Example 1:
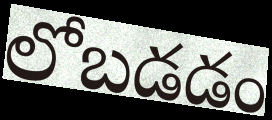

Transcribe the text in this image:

లోబడడం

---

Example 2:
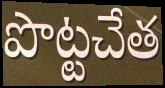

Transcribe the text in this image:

పొట్టచేత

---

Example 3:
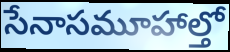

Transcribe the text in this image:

సేనాసమూహాల్తో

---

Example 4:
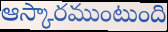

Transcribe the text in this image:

ఆస్కారముంటుంది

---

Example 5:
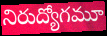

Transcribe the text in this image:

నిరుద్యోగమూ